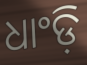
ଧାଂଡ଼ି